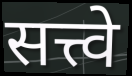
सत्त्वे